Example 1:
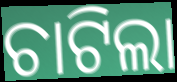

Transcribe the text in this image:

ଚାଟିଲା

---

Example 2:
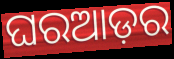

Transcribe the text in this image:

ଘରଆଡ଼ର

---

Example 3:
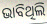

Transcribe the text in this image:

ଭାବିଥିଲି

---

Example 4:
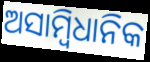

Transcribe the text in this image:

ଅସାମ୍ବିଧାନିକ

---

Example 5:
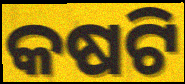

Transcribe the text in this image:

କଷଟି